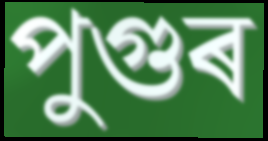
পুগুৰ